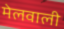
मेलवाली